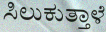
ಸಿಲುಕುತ್ತಾಳೆ